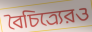
বৈচিত্র্যেরও